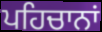
ਪਹਿਚਾਨਾਂ